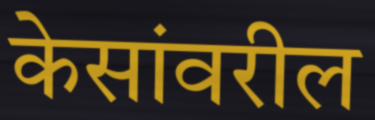
केसांवरील